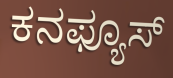
ಕನಫ್ಯೂಸ್